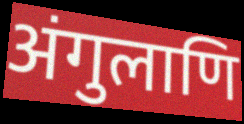
अंगुलाणि